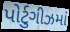
પોર્ટુગીઝમાં